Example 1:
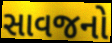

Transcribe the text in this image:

સાવજનો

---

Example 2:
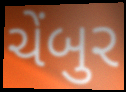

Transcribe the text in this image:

ચેંબુર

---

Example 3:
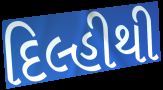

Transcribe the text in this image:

દિલ્હીથી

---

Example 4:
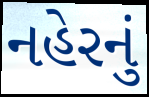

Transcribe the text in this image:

નહેરનું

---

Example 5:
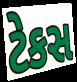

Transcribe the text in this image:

ટેકસ